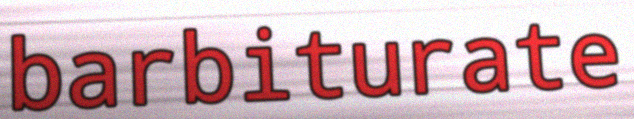
barbiturate